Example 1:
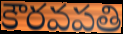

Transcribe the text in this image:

కౌరవపతి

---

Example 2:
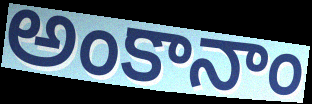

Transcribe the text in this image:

అంకానాం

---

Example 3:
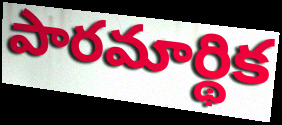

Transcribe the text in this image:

పారమార్థిక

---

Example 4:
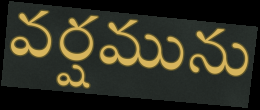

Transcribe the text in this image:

వర్షమును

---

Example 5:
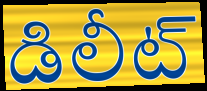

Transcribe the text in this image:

డిలీట్